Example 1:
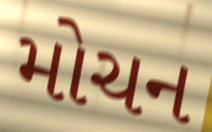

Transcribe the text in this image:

મોચન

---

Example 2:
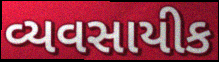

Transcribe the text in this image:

વ્યવસાયીક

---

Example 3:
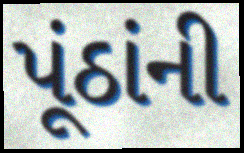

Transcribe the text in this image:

પૂંઠાંની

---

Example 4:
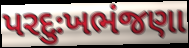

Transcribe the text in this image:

પરદુઃખભંજણા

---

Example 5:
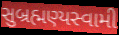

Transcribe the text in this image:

સુબ્રહ્મણ્યસ્વામી